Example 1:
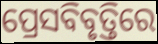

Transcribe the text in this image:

ପ୍ରେସବିବୃତ୍ତିରେ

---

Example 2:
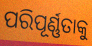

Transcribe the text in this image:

ପରିପୂର୍ଣ୍ଣତାକୁ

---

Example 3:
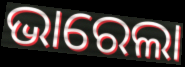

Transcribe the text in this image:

ଭାରେଲା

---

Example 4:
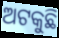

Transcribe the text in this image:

ଅଟକୁଛି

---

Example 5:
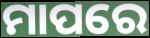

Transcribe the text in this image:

ମାପରେ